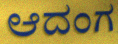
ಆದಂಗ